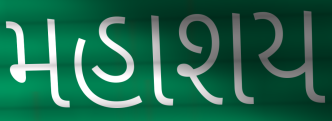
મહાશય